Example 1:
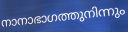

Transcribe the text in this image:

നാനാഭാഗത്തുനിന്നും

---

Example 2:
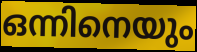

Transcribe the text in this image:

ഒന്നിനെയും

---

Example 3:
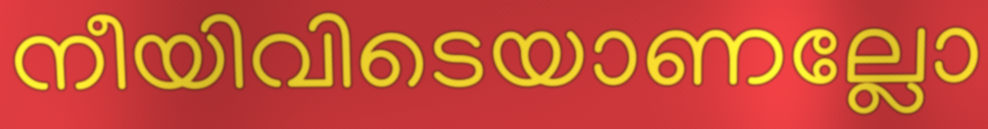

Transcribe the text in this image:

നീയിവിടെയാണല്ലോ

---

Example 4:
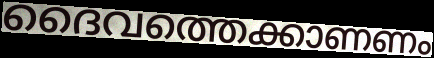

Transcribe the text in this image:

ദൈവത്തെക്കാണണം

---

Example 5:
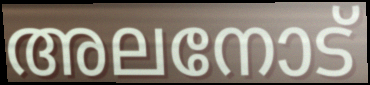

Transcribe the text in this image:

അലനോട്